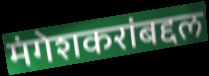
मंगेशकरांबद्दल